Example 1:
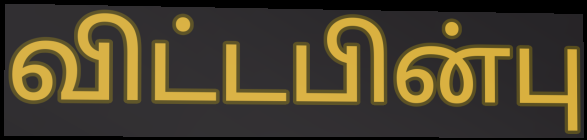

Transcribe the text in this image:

விட்டபின்பு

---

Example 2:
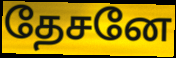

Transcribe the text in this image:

தேசனே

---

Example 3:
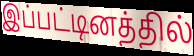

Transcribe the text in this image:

இப்பட்டினத்தில்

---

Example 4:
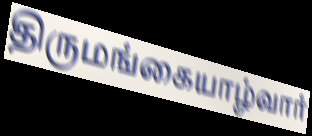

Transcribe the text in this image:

திருமங்கையாழ்வார்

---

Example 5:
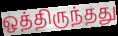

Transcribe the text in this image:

ஒத்திருந்தது